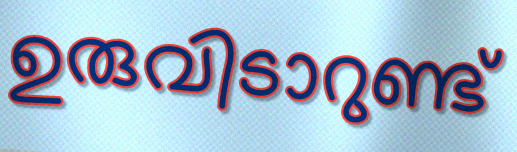
ഉരുവിടാറുണ്ട്